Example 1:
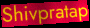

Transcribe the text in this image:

Shivpratap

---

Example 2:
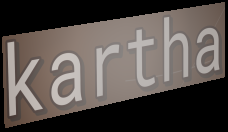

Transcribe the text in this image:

kartha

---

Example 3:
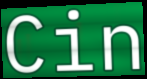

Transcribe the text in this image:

Cin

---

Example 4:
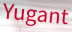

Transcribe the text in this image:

Yugant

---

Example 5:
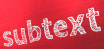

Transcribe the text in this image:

subtext